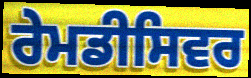
ਰੇਮਡੀਸਿਵਰ